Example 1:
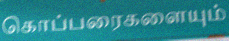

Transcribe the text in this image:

கொப்பரைகளையும்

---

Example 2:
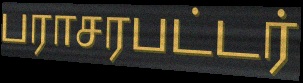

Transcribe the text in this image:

பராசரபட்டர்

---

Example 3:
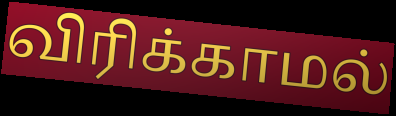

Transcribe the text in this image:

விரிக்காமல்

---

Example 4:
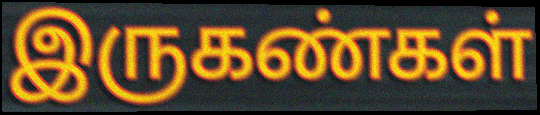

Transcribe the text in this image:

இருகண்கள்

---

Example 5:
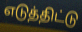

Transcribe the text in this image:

எடுத்திட்டு